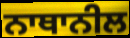
ਨਾਥਾਨੀਲ